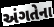
અંગતેના